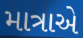
માત્રાએ